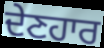
ਦੇਣਹਾਰ